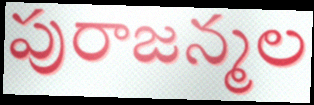
పురాజన్మల